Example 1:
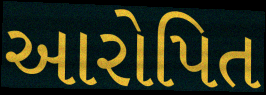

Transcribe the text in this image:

આરોપિત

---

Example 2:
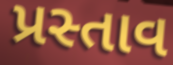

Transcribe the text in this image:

પ્રસ્તાવ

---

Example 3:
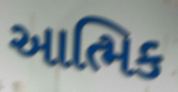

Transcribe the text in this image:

આત્મિક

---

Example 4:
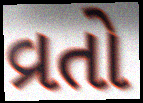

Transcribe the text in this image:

વ્રતો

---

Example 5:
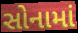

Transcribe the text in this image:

સોનામાં